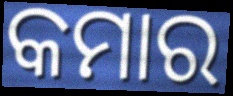
କମାର